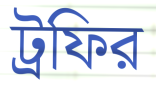
ট্রফির